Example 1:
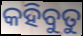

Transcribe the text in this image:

କହିବୁତୁ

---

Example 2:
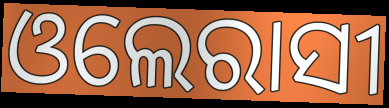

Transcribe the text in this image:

ଓଲେରାସୀ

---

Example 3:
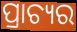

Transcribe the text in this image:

ପ୍ରାଚ୍ୟର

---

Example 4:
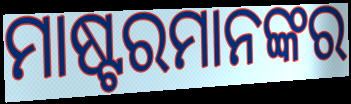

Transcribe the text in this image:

ମାଷ୍ଟରମାନଙ୍କର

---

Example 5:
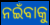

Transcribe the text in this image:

ନଇଁବାକୁ